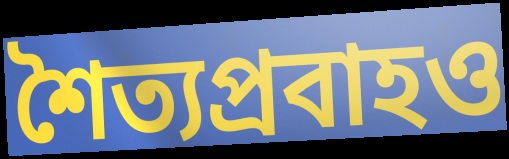
শৈত্যপ্রবাহও